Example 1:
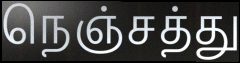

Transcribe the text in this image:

நெஞ்சத்து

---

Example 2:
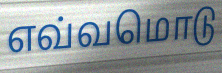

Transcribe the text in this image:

எவ்வமொடு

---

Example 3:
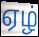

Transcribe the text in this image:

ஏழ்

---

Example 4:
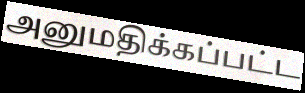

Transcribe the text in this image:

அனுமதிக்கப்பட்ட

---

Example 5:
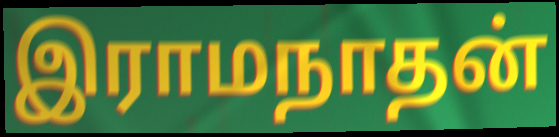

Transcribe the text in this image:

இராமநாதன்